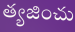
త్యజించు